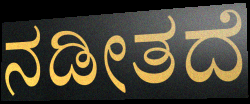
ನಡೀತದೆ